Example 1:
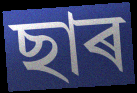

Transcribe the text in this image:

ছাৰ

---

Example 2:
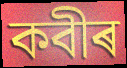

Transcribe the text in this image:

কবীৰ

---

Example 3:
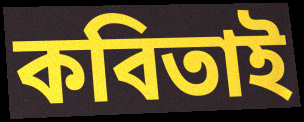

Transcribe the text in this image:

কবিতাই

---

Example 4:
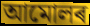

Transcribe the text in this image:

আমোলৰ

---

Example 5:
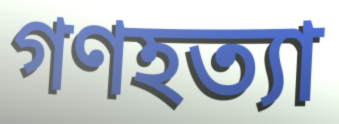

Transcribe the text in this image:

গণহত্যা